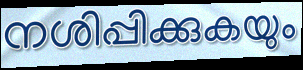
നശിപ്പിക്കുകയും